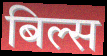
बिल्स